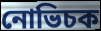
নোভিচক